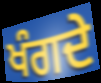
ਖੰਗਦੇ